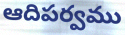
ఆదిపర్వము